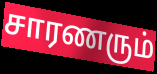
சாரணரும்